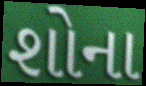
શોના